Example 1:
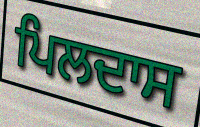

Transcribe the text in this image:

ਪਿਲਦਾਸ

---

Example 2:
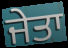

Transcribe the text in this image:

ਜੇਤਾ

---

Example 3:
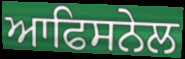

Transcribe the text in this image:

ਆਫਿਸਨੇਲ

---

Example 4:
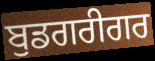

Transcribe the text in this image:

ਬੁਡਗਰੀਗਰ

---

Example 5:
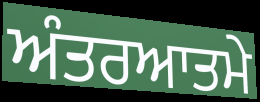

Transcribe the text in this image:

ਅੰਤਰਆਤਮੇ